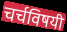
चर्चविषयी